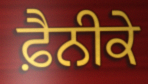
ਫ਼ੈਨੀਕੇ